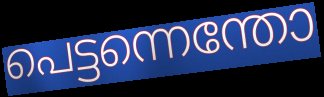
പെട്ടന്നെന്തോ